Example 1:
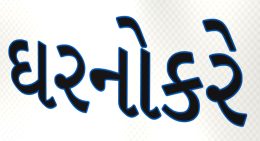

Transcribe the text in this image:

ઘરનોકરે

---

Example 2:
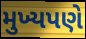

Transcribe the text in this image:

મુખ્યપણે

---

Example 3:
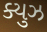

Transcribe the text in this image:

ક્યુઝ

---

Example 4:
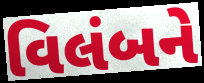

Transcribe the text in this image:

વિલંબને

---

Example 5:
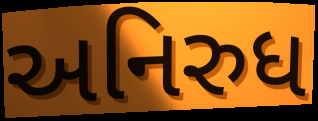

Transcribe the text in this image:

અનિરુધ